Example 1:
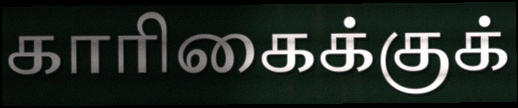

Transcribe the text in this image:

காரிகைக்குக்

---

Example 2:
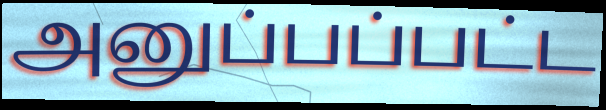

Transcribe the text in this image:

அனுப்பப்பட்ட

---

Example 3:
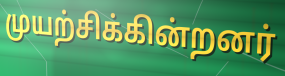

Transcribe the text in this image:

முயற்சிக்கின்றனர்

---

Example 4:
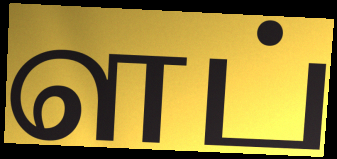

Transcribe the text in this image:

ளப்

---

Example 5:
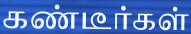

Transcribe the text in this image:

கண்டீர்கள்